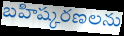
బహిష్కరణలను